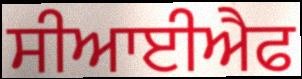
ਸੀਆਈਐਫ